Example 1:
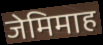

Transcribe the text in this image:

जेमिमाह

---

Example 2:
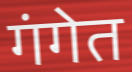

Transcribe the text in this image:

गंगेत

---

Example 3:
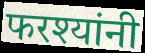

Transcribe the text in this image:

फरश्यांनी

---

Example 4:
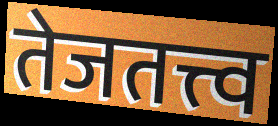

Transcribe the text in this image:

तेजतत्त्व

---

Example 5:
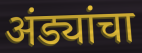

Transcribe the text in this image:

अंड्यांचा